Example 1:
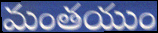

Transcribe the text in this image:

మంతయుం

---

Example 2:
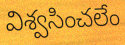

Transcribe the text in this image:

విశ్వసించలేం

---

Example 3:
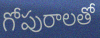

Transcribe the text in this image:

గోపురాలతో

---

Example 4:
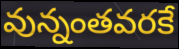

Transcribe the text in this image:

వున్నంతవరకే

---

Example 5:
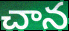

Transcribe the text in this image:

చాన